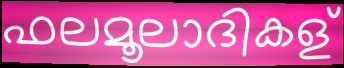
ഫലമൂലാദികള്